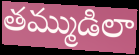
తమ్ముడిలా